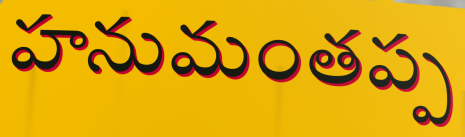
హనుమంతప్ప